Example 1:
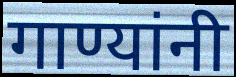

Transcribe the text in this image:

गाण्यांनी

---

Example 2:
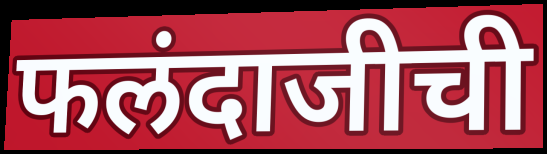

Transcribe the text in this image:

फलंदाजीची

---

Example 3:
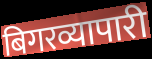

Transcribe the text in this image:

बिगरव्यापारी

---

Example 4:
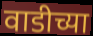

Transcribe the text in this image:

वाडीच्या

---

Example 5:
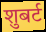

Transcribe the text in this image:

शुबर्ट